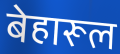
बेहारूल